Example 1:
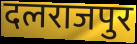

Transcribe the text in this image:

दलराजपुर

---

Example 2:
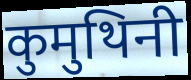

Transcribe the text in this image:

कुमुथिनी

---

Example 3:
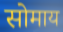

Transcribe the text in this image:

सोमाय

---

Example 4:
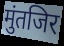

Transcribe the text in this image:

मुंतजिर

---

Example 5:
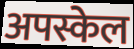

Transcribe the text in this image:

अपस्केल